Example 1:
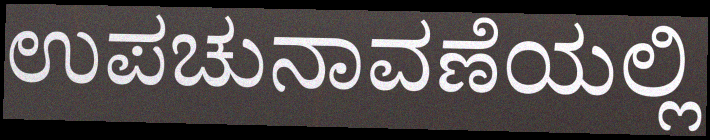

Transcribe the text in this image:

ಉಪಚುನಾವಣೆಯಲ್ಲಿ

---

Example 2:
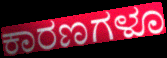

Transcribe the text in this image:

ಕಾರಣಗಳೂ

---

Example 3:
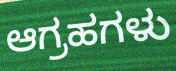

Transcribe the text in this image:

ಆಗ್ರಹಗಳು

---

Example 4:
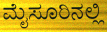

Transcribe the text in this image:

ಮೈಸೂರಿನಲ್ಲಿ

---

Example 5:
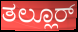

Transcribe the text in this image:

ತಲ್ಲೂರ್